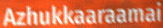
Azhukkaaraamai